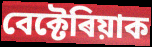
বেক্টেৰিয়াক